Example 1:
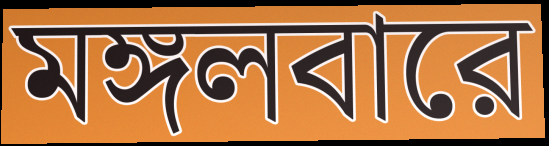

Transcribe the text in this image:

মঙ্গলবারে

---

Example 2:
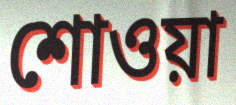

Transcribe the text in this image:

শোওয়া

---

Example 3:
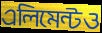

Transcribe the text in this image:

এলিমেন্টও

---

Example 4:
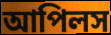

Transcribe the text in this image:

আপিলস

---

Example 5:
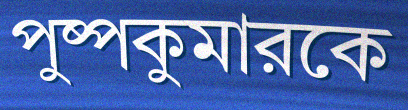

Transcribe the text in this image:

পুষ্পকুমারকে